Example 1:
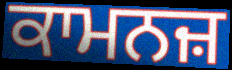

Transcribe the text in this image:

ਕਾਮਨਜ਼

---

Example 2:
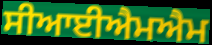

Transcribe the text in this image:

ਸੀਆਈਐਮਐਮ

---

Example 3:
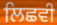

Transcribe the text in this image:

ਲਿਛਵੀ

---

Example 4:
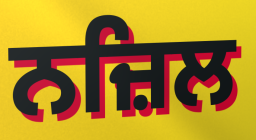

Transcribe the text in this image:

ਨਜ਼ਿਲ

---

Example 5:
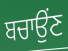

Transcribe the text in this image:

ਬਚਾਉਂਣ